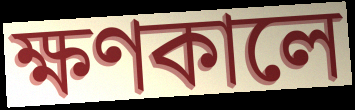
ক্ষণকালে